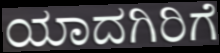
ಯಾದಗಿರಿಗೆ